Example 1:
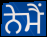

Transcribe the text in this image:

ਨੇਮੈਂ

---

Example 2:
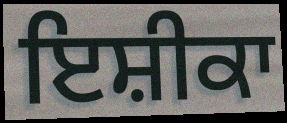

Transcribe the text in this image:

ਇਸ਼ੀਕਾ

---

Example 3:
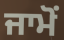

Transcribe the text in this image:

ਜਾਮੋਂ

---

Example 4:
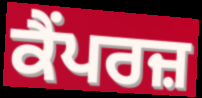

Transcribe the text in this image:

ਕੈਂਪਰਜ਼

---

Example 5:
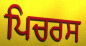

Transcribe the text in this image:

ਪਿਚਰਸ